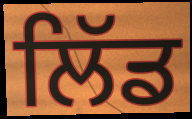
ਲਿੱਡ